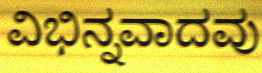
ವಿಭಿನ್ನವಾದವು